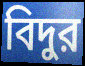
বিদুর